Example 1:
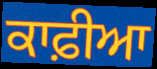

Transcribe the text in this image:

ਕਾਫ਼ੀਆ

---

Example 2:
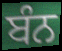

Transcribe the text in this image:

ਬੰਨ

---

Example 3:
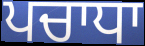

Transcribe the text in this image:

ਪਚਾਧਾ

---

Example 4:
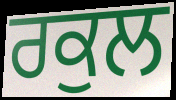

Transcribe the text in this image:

ਰਕੁਲ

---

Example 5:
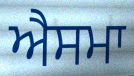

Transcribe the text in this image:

ਐਸਮਾ